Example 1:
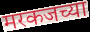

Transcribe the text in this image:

मरकजच्या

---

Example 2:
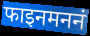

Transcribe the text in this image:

फाइनमननं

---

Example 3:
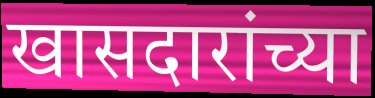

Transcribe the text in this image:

खासदारांच्या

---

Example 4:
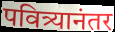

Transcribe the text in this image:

पवित्र्यानंतर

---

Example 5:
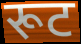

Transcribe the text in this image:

रूट